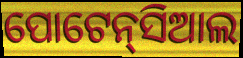
ପୋଟେନ୍‌ସିଆଲ